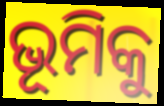
ଭୂମିକୁ